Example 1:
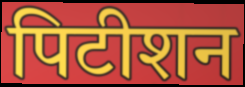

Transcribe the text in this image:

पिटीशन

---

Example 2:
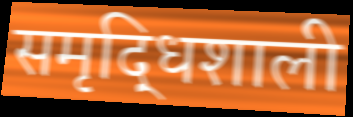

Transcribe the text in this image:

समृद्धिशाली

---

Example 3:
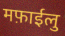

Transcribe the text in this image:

मफ़ाईलु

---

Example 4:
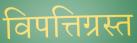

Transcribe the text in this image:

विपत्तिग्रस्त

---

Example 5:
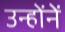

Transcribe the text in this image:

उन्‍होंनें